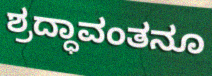
ಶ್ರದ್ಧಾವಂತನೂ